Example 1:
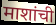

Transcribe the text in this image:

माशांची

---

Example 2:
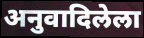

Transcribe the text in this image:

अनुवादिलेला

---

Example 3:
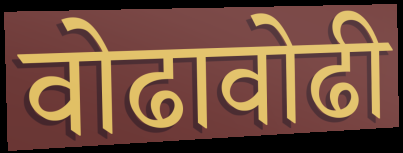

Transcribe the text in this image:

वोढावोढी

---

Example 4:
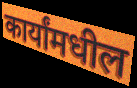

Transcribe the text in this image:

कार्यांमधील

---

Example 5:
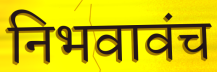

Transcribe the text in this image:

निभवावंच